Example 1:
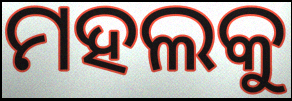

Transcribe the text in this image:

ମହଲକୁ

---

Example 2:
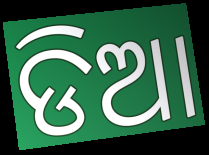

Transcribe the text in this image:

ଡିଆ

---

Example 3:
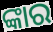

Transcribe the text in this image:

ଙ୍କାର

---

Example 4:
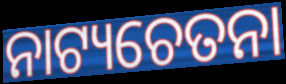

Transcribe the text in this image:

ନାଟ୍ୟଚେତନା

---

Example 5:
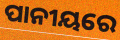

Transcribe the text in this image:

ପାନୀୟରେ